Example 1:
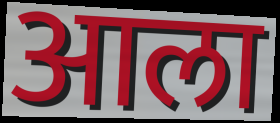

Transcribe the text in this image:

आला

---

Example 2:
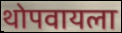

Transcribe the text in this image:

थोपवायला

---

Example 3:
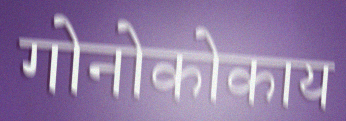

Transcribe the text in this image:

गोनोकोकाय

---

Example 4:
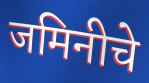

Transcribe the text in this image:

जमिनीचे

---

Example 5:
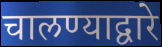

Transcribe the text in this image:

चालण्याद्वारे